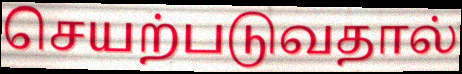
செயற்படுவதால்